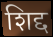
शिद्द